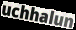
uchhalun